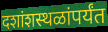
दशांशस्थळांपर्यंत